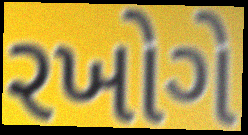
રખોગે